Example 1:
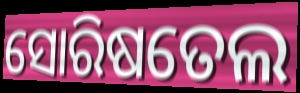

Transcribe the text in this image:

ସୋରିଷତେଲ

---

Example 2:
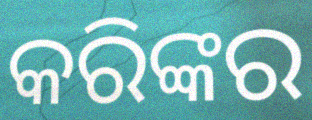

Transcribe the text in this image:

କରିଙ୍କର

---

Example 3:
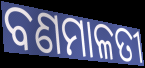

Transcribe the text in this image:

ବଣମାଳତୀ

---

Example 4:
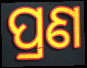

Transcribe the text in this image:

ପ୍ରଣ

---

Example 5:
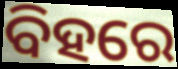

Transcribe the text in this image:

ବିହରେ